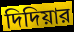
দিদিয়ার